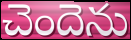
చెందెను